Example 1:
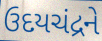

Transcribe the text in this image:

ઉદયચંદ્રને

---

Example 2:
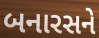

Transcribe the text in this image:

બનારસને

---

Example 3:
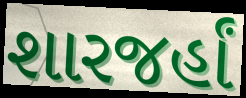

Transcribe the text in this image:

શારજર્હાં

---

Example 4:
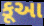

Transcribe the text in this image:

કૂઆ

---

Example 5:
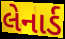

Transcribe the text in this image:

લેનાર્ડ